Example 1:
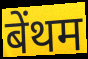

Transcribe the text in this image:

बेंथम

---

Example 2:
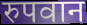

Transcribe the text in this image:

रुपवान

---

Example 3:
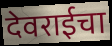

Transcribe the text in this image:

देवराईचा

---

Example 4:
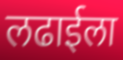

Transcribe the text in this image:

लढाईला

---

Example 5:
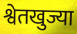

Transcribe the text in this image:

श्वेतखुज्या